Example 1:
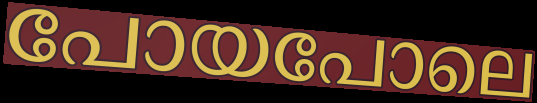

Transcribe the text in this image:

പോയപോലെ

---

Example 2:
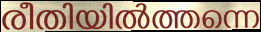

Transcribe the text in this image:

രീതിയിൽത്തന്നെ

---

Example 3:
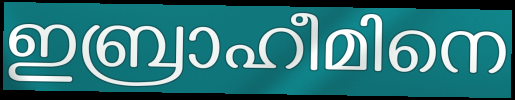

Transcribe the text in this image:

ഇബ്രാഹീമിനെ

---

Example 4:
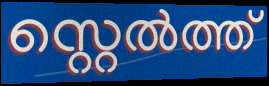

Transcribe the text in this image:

സ്റ്റെൽത്ത്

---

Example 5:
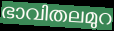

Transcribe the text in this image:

ഭാവിതലമുറ